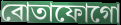
বোতাফোগো